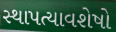
સ્થાપત્યાવશેષો